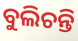
ବୁଲିଚନ୍ତି